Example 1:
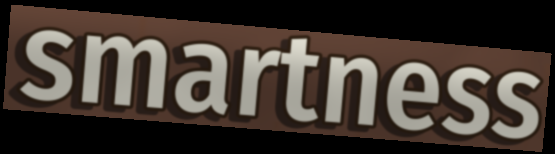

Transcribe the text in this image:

smartness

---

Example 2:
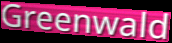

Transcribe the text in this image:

Greenwald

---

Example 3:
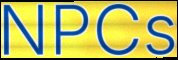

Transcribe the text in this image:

NPCs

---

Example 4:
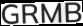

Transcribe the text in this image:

GRMB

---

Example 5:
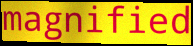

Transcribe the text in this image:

magnified